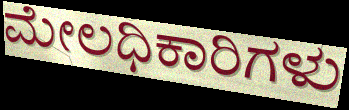
ಮೇಲಧಿಕಾರಿಗಳು